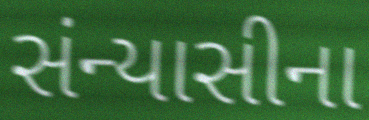
સંન્યાસીના